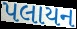
પલાયન